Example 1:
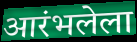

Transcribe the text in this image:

आरंभलेला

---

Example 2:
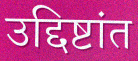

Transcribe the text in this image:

उद्दिष्टांत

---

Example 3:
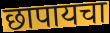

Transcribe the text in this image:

छापायचा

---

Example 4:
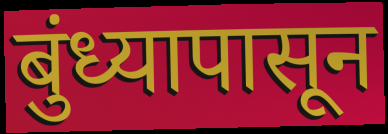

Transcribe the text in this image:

बुंध्यापासून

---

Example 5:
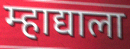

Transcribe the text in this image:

म्हाद्याला